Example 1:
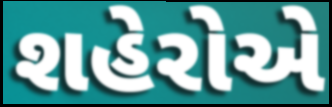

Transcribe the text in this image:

શહેરોએ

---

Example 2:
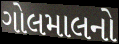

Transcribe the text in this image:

ગોલમાલનો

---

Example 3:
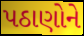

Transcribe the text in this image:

પઠાણોને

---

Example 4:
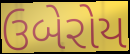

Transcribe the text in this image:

ઉબેરોય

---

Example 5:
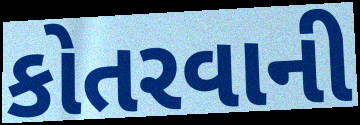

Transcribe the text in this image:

કોતરવાની